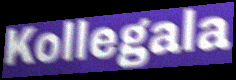
Kollegala